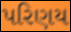
પરિણય